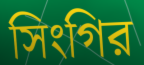
সিংগির